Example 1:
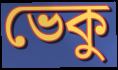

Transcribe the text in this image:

ভেকু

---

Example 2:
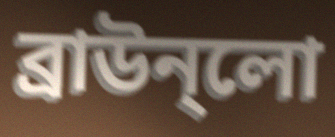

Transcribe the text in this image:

ব্রাউন্লো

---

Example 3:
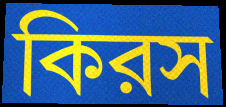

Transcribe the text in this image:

কিরস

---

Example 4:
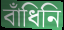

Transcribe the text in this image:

বাঁধিনি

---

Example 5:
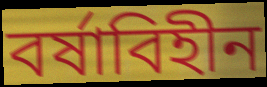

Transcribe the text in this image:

বর্ষাবিহীন